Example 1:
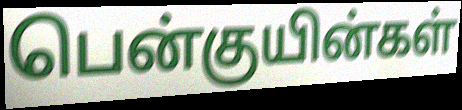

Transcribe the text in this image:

பென்குயின்கள்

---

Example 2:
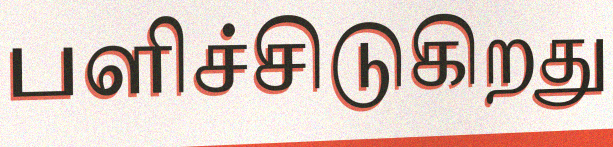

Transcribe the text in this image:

பளிச்சிடுகிறது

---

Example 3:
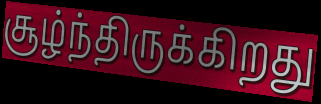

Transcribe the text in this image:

சூழ்ந்திருக்கிறது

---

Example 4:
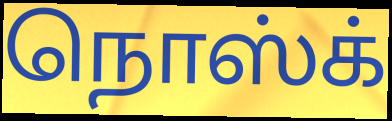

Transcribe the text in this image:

நொஸ்க்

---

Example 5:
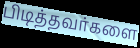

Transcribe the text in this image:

பிடித்தவர்களை